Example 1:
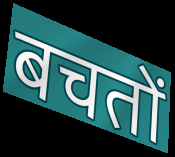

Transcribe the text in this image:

बचतों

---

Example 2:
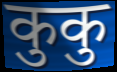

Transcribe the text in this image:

कुकु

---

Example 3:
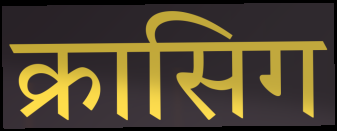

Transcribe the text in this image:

क्रासिग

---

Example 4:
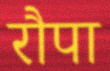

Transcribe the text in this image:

रौपा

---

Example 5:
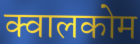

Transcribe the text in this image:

क्वालकोम